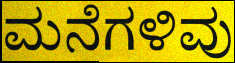
ಮನೆಗಳಿವು